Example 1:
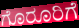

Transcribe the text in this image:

ಗೊರೂರಿಗೆ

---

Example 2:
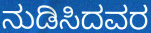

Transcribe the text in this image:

ನುಡಿಸಿದವರ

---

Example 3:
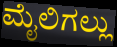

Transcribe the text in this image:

ಮೈಲಿಗಲ್ಲು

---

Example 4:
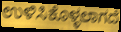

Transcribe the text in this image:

ಉಳಿಸಿಕೊಳ್ಳಲಾಗದೆ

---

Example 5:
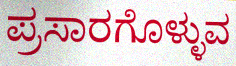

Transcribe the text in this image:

ಪ್ರಸಾರಗೊಳ್ಳುವ